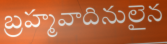
బ్రహ్మవాదినులైన